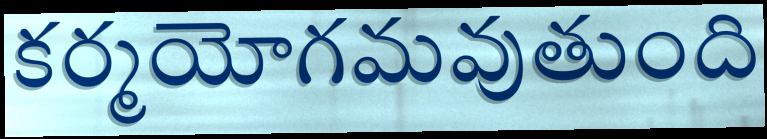
కర్మయోగమవుతుంది